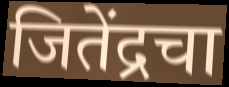
जितेंद्रचा